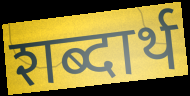
शब्दार्थ